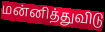
மன்னித்துவிடு